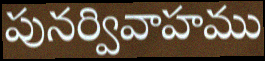
పునర్వివాహము